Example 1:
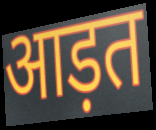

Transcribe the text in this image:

आड़त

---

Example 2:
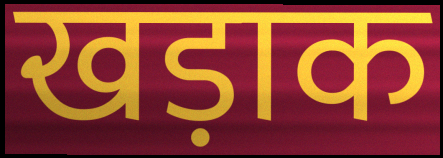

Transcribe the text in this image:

खड़ाक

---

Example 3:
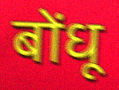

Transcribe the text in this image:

बोंधू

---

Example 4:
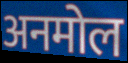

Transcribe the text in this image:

अनमोल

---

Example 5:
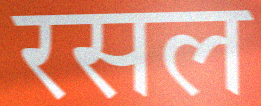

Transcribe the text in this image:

रसल